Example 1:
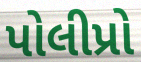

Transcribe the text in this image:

પોલીપ્રો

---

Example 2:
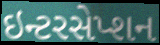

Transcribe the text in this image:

ઇન્ટરસેપ્શન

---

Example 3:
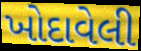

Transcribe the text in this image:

ખોદાવેલી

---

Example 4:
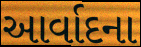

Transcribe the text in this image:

આર્વાદના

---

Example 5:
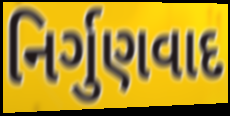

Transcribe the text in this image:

નિર્ગુણવાદ